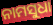
ନାମସୁଧା